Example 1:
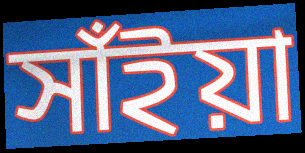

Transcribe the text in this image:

সাঁইয়া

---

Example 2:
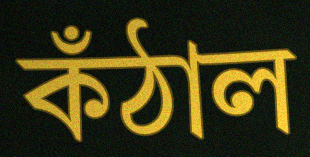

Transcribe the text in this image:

কঁঠাল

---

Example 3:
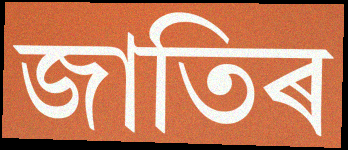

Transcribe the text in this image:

জাতিৰ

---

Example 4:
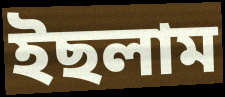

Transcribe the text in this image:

ইছলাম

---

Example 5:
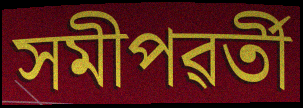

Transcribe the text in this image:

সমীপৱৰ্তী